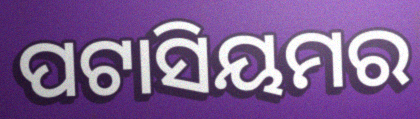
ପଟାସିୟମର